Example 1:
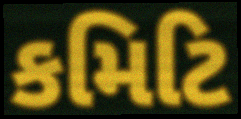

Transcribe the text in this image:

કમિટિ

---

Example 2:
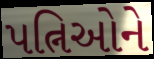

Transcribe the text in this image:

પત્નિઓને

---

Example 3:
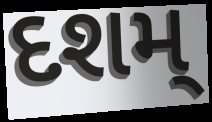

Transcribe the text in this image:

દશમ્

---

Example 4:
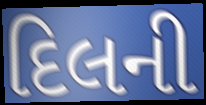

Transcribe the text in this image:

દિલની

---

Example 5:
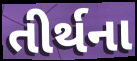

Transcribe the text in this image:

તીર્થના